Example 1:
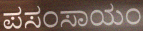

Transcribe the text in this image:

ಪಸಂಸಾಯಂ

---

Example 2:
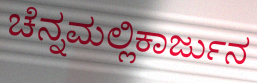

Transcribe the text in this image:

ಚೆನ್ನಮಲ್ಲಿಕಾರ್ಜುನ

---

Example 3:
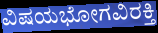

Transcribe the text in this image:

ವಿಷಯಭೋಗವಿರಕ್ತಿ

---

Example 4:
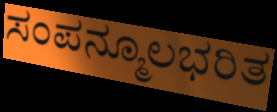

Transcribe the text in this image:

ಸಂಪನ್ಮೂಲಭರಿತ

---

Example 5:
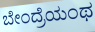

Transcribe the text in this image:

ಬೇಂದ್ರೆಯಂಥ